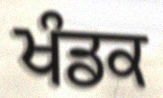
ਖੰਡਕ